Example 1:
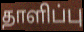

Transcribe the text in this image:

தாளிப்பு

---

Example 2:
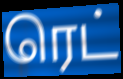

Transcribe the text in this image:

ரெட்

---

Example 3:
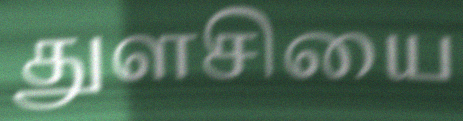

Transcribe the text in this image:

துளசியை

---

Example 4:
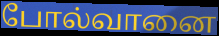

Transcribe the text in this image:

போல்வானை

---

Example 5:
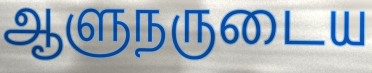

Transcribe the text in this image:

ஆளுநருடைய